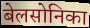
बेलसोनिका